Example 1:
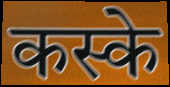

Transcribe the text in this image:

कस्के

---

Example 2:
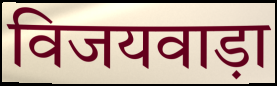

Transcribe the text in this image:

विजयवाड़ा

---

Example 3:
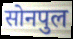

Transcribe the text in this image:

सोनपुल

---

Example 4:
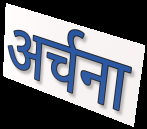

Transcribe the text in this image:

अर्चना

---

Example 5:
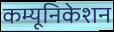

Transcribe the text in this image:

कम्यूनिकेशन